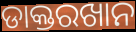
ଡାକ୍ତରଖାନ